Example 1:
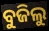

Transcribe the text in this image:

ବୁଜିଲୁ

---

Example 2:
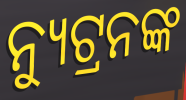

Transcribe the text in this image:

ନ୍ୟୁଟ୍ରନଙ୍କ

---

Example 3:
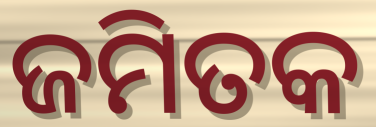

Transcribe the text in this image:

ଜମିତକ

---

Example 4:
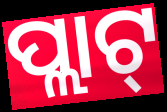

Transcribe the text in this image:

ପ୍ଲାଟ୍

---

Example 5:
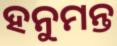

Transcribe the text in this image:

ହନୁମନ୍ତ